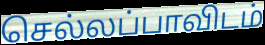
செல்லப்பாவிடம்